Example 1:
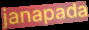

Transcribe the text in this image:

janapada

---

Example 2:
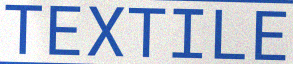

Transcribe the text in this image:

TEXTILE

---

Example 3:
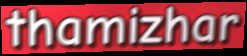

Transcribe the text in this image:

thamizhar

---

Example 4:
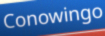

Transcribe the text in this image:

Conowingo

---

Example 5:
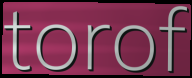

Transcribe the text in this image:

torof